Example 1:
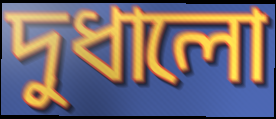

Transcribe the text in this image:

দুধালো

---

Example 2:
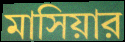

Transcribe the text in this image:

মাসিয়ার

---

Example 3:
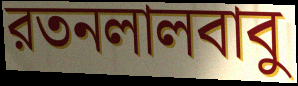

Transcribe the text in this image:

রতনলালবাবু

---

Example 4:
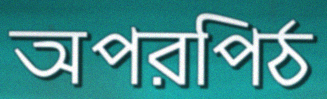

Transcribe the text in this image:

অপরপিঠ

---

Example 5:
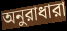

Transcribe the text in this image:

অনুরাধারা